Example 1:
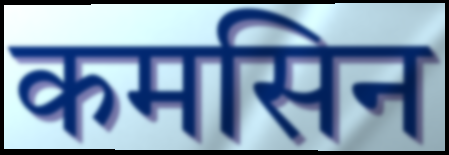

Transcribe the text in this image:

कमसिन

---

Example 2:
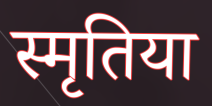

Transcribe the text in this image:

स्मृतिया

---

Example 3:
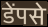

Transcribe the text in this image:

डेंपसे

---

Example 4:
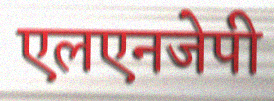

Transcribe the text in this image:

एलएनजेपी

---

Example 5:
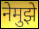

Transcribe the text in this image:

नेमुझे